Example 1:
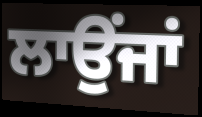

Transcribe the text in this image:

ਲਾਉਂਜਾਂ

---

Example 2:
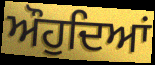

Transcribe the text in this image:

ਔਹੁਦਿਆਂ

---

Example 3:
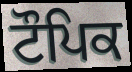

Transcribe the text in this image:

ਟੌਪਿਕ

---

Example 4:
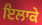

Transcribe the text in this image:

ਇਲਾਕੇ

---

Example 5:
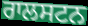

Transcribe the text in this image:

ਰਾਲਸਟਨ